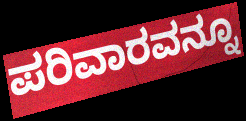
ಪರಿವಾರವನ್ನೂ